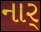
નાર્